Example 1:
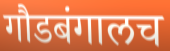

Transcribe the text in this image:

गौडबंगालच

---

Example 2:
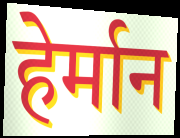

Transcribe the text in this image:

हेर्मान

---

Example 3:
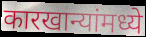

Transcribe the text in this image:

कारखान्यांमध्ये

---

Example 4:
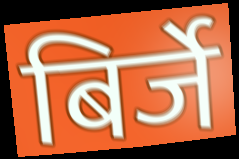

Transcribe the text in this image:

बिर्जे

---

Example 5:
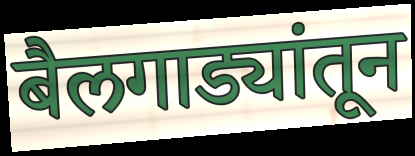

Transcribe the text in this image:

बैलगाड्यांतून